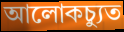
আলোকচ্যুত